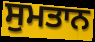
ਸੁਮਤਾਨ